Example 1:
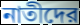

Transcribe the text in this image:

নাতীদের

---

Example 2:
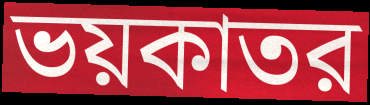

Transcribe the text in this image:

ভয়কাতর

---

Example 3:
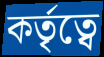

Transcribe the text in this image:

কর্তৃত্বে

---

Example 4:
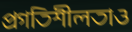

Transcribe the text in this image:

প্রগতিশীলতাও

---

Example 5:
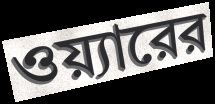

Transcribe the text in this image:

ওয়্যারের